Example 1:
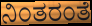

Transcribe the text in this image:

ನಿಂತರಂತೆ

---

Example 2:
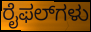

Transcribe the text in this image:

ರೈಫಲ್‌ಗಳು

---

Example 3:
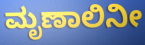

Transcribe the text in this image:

ಮೃಣಾಲಿನೀ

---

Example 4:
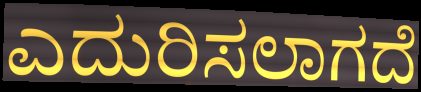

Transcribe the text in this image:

ಎದುರಿಸಲಾಗದೆ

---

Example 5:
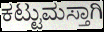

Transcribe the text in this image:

ಕಟ್ಟುಮಸ್ತಾಗಿ